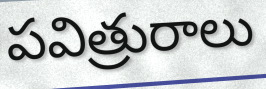
పవిత్రురాలు